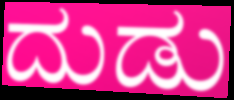
ದುಡು